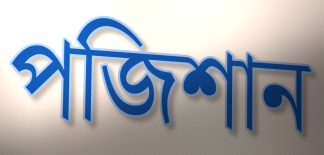
পজিশান